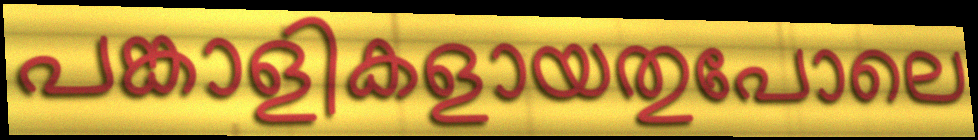
പങ്കാളികളായതുപോലെ